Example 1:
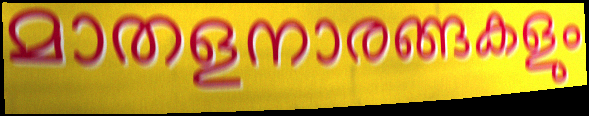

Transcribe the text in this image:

മാതളനാരങ്ങകളും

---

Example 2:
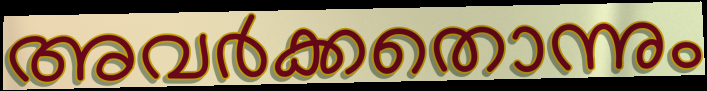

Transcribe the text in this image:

അവർക്കതൊന്നും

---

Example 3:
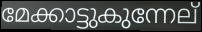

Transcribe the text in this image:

മേക്കാട്ടുകുന്നേല്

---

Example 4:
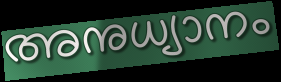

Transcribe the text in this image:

അനുധ്യാനം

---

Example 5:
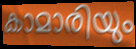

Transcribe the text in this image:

കാമാരിയും